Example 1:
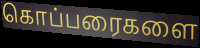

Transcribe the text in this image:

கொப்பரைகளை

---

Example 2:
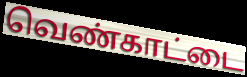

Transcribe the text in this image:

வெண்காட்டை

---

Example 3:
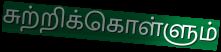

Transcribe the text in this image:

சுற்றிக்கொள்ளும்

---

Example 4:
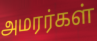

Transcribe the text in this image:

அமரர்கள்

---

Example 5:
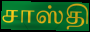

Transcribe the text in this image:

சாஸ்தி